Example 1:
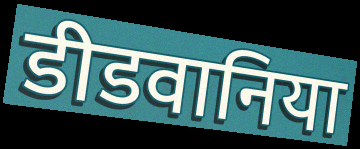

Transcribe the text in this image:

डीडवानिया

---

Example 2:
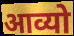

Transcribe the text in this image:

आव्यो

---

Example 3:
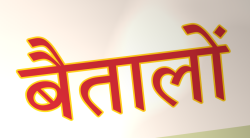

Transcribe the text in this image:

बैतालों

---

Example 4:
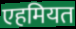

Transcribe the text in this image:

एहमियत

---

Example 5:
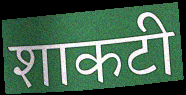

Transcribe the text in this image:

शाकटी